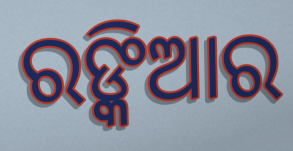
ରଙ୍କିଆର